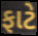
ફાટે